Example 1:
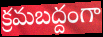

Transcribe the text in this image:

క్రమబద్దంగా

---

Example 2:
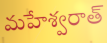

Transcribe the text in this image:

మహేశ్వరాత్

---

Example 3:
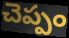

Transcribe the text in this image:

చెప్పం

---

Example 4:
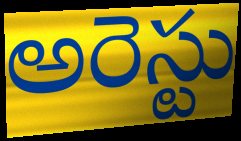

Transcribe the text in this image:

అరెస్టు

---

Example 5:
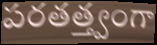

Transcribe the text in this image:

పరతత్త్వంగా